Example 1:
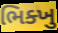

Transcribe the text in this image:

ભિક્ખુ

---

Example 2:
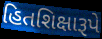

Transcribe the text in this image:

હિતશિક્ષારૂપે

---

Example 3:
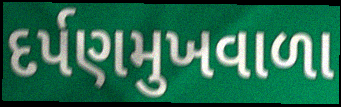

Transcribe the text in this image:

દર્પણમુખવાળા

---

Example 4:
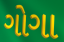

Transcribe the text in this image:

ગોગા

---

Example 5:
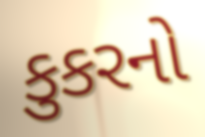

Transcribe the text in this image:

કુકરનો